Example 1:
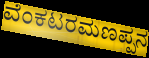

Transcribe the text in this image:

ವೆಂಕಟರಮಣಪ್ಪನ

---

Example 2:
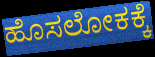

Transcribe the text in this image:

ಹೊಸಲೋಕಕ್ಕೆ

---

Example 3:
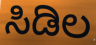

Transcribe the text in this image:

ಸಿಡಿಲ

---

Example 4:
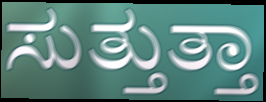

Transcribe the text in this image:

ಸುತ್ತುತ್ತಾ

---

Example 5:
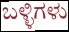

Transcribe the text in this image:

ಬಳ್ಳಿಗಳು